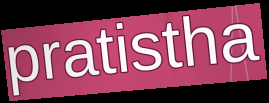
pratistha